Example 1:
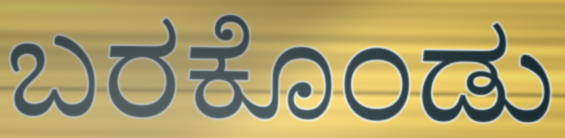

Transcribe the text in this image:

ಬರಕೊಂಡು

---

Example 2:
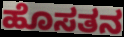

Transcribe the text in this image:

ಹೊಸತನ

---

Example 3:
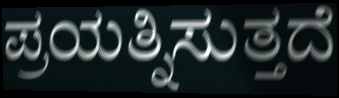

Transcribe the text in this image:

ಪ್ರಯತ್ನಿಸುತ್ತದೆ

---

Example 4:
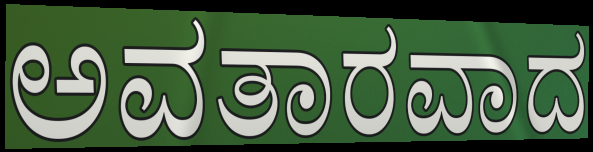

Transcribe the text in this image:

ಅವತಾರವಾದ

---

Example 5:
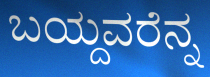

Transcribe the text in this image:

ಬಯ್ದವರೆನ್ನ